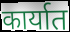
कार्यात